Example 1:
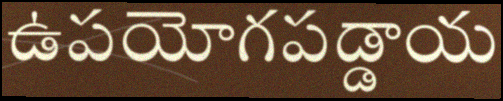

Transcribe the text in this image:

ఉపయోగపడ్డాయ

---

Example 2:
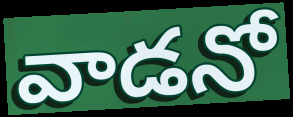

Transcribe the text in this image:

వాడనో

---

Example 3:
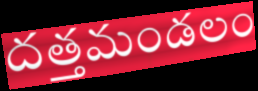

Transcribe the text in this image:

దత్తమండలం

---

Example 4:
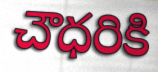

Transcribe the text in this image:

చౌధరికి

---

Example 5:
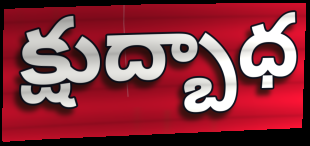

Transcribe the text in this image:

క్షుద్బాధ